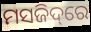
ମସଜିଦ୍‌ରେ